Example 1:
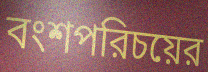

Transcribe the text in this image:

বংশপরিচয়ের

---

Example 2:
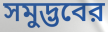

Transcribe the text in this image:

সমুদ্ভবের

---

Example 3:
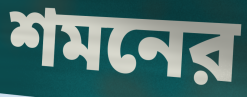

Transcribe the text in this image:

শমনের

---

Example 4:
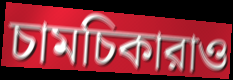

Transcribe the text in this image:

চামচিকারাও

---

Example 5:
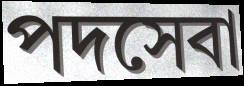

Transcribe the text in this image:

পদসেবা